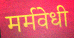
मर्मवेधी